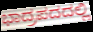
ಭಾದ್ರಪದದಲ್ಲಿ